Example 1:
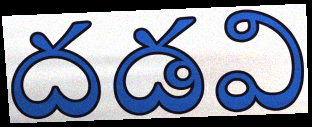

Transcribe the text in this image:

దడవి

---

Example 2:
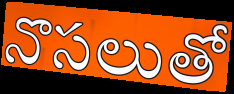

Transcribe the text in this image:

నొసలుతో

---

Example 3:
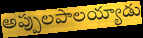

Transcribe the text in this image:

అప్పులపాలయ్యాడు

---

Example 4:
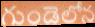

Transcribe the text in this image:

గుండెలోన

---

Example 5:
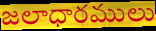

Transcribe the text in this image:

జలాధారములు